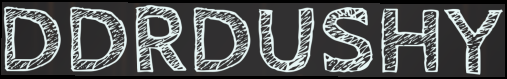
DDRDUSHY